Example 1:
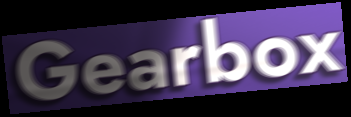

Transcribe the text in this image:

Gearbox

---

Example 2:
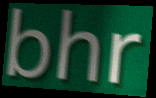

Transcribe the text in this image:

bhr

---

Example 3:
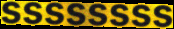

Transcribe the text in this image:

ssssssss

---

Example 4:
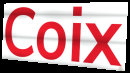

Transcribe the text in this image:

Coix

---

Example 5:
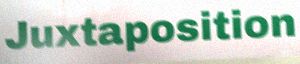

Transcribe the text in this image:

Juxtaposition